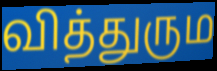
வித்துரும